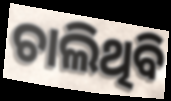
ଚାଲିଥିବି